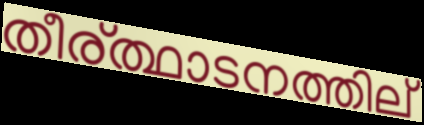
തീര്ത്ഥാടനത്തില്